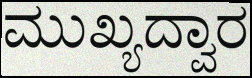
ಮುಖ್ಯದ್ವಾರ